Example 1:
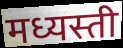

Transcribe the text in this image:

मध्यस्ती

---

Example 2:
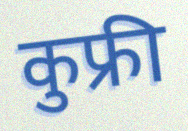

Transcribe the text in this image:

कुफ्री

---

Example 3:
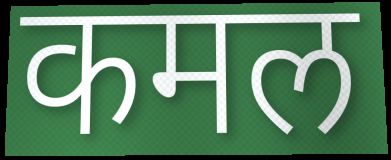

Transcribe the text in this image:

कमल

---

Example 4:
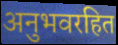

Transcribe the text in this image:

अनुभवरहित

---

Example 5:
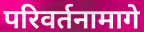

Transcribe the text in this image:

परिवर्तनामागे